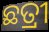
ଛତ୍ରୀ